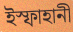
ইস্ফাহানী